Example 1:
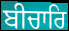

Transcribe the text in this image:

ਬੀਚਾਰਿ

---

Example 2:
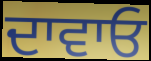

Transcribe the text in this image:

ਦਾਵਾਓ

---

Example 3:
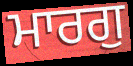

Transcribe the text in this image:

ਮਾਰਗੁ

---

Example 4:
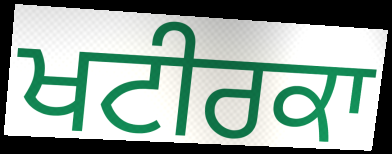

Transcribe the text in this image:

ਖਟੀਰਕਾ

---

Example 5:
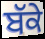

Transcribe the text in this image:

ਬੱਕੇ